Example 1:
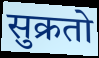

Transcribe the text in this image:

सुक्रतो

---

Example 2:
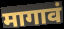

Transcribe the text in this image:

मागावं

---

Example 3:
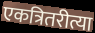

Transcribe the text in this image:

एकत्रितरीत्या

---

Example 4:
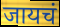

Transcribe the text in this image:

जायचं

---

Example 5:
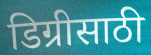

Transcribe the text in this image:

डिग्रीसाठी